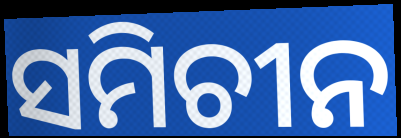
ସମିଚୀନ